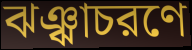
ঝঞ্ঝাচরণে